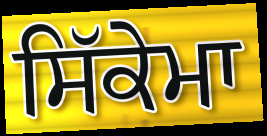
ਸਿੱਕੇਮਾ